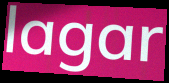
lagar